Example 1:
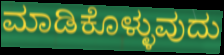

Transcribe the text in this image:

ಮಾಡಿಕೊಳ್ಳುವುದು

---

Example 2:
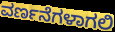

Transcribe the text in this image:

ವರ್ಣನೆಗಳಾಗಲಿ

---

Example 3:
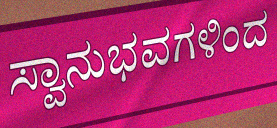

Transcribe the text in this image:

ಸ್ವಾನುಭವಗಳಿಂದ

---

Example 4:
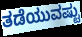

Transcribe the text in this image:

ತಡೆಯುವಷ್ಟು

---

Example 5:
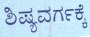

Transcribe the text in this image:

ಶಿಷ್ಯವರ್ಗಕ್ಕೆ